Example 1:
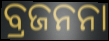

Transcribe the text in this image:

ବ୍ରଜନନା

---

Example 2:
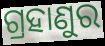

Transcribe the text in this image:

ଗ୍ରହାଣୁର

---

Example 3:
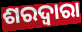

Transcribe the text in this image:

ଶରଦ୍ୱାରା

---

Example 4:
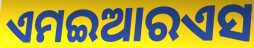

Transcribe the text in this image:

ଏମଇଆରଏସ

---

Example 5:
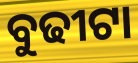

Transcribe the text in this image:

ବୁଢୀଟା